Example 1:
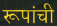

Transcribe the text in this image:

रूपांची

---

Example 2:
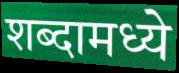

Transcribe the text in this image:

शब्दामध्ये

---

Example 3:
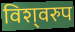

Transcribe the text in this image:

विश्वरुप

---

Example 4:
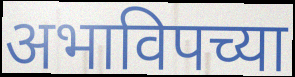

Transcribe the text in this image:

अभाविपच्या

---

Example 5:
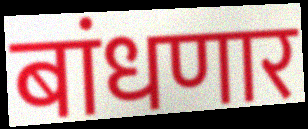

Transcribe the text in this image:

बांधणार